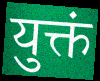
युक्तं